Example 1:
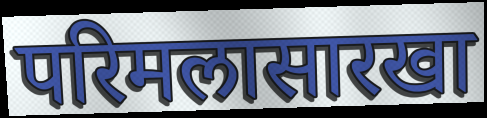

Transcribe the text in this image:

परिमलासारखा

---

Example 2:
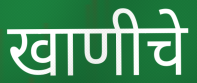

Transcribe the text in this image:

खाणीचे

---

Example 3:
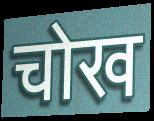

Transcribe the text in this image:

चोख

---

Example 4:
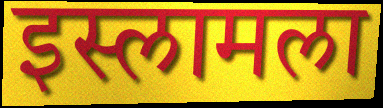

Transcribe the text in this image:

इस्लामला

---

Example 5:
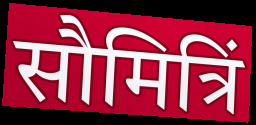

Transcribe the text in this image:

सौमित्रिं